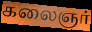
கலைஞர்